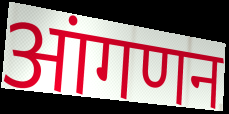
आंगणन